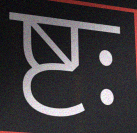
ष्टः